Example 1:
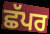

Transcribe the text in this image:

ਛੱਪਰ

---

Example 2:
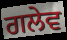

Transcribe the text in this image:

ਗਲੇਵ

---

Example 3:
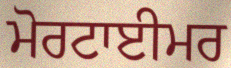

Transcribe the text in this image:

ਮੋਰਟਾਈਮਰ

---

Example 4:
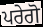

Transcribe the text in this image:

ਪਰੇਗੋ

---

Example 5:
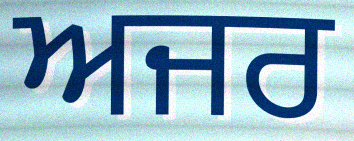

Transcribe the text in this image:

ਅਜਰ